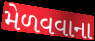
મેળવવાના